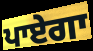
ਪਾਏਗਾ